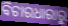
ବିଚାରଧାରାରୁ